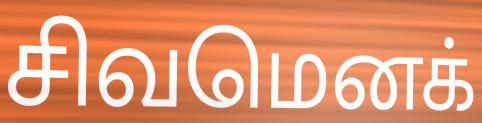
சிவமெனக்